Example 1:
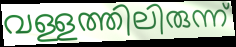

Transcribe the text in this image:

വള്ളത്തിലിരുന്ന്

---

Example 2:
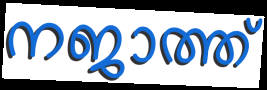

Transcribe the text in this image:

നജാത്ത്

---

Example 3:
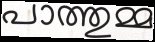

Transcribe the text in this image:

പാത്തുമ്മ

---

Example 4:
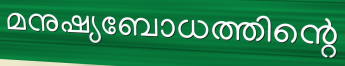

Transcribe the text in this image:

മനുഷ്യബോധത്തിന്റെ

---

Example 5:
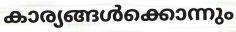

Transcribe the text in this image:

കാര്യങ്ങൾക്കൊന്നും